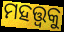
ମହତ୍ତ୍ଵକୁ